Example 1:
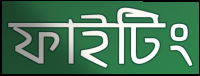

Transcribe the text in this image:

ফাইটিং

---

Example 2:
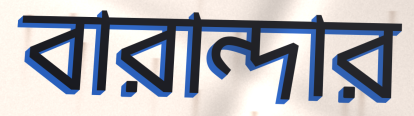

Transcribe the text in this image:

বারান্দার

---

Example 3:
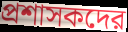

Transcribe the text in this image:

প্রশাসকদের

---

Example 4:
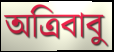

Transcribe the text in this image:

অত্রিবাবু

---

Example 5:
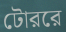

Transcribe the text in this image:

টোররে